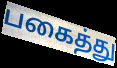
பகைத்து